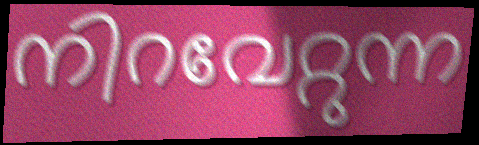
നിറവേറ്റുന്ന